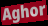
Aghor